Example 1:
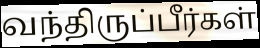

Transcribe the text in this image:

வந்திருப்பீர்கள்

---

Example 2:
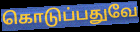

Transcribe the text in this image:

கொடுப்பதுவே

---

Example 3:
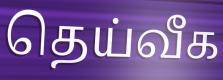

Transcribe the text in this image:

தெய்வீக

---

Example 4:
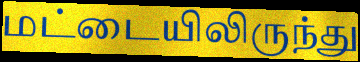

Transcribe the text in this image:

மட்டையிலிருந்து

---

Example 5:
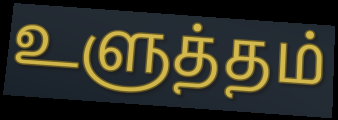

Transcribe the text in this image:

உளுத்தம்